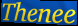
Thenee